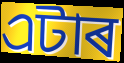
এটাৰ